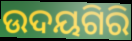
ଉଦୟଗିରି